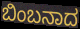
ಬಿಂಬನಾದ